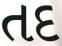
તદ